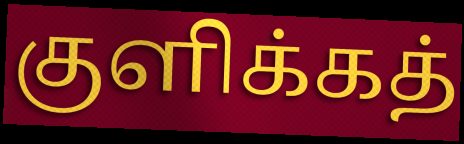
குளிக்கத்